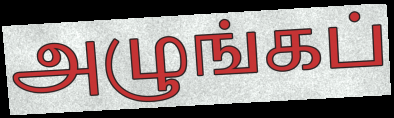
அழுங்கப்